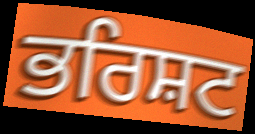
ਭਰਿਸ਼ਟ